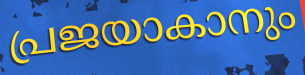
പ്രജയാകാനും